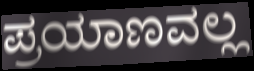
ಪ್ರಯಾಣವಲ್ಲ